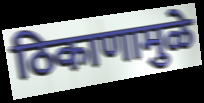
ठिकाणामुळे